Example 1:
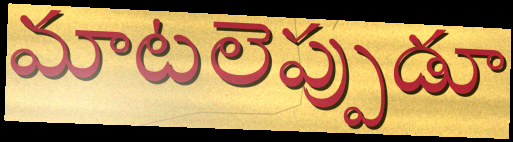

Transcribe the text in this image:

మాటలెప్పుడూ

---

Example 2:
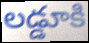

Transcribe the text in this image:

లడ్డూకి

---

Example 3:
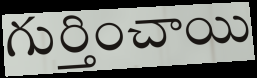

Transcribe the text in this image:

గుర్తించాయి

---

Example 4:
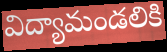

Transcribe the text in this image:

విద్యామండలికి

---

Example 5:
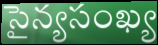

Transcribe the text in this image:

సైన్యసంఖ్య